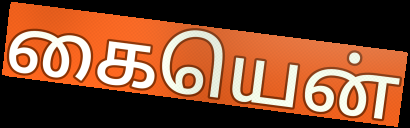
கையென்